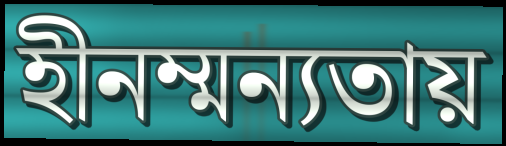
হীনম্মন্যতায়